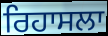
ਰਿਹਾਸਲਾ